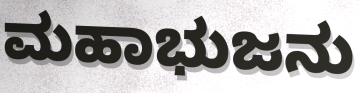
ಮಹಾಭುಜನು